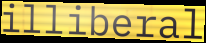
illiberal